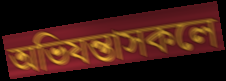
অভিযন্তাসকলে